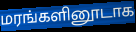
மரங்களினூடாக